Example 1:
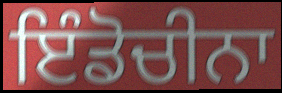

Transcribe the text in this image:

ਇੰਡੋਚੀਨਾ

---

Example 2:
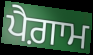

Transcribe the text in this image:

ਪੈਗ਼ਾਮ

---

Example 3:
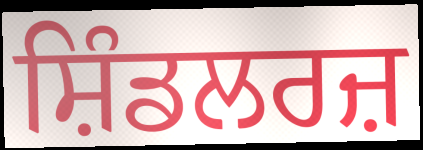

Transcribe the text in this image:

ਸ਼ਿੰਡਲਰਜ਼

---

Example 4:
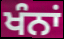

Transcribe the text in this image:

ਖੰਨਾਂ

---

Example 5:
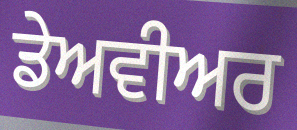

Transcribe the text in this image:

ਡੇਅਵੀਅਰ